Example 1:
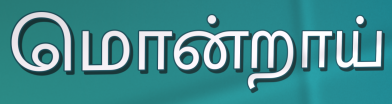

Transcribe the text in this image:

மொன்றாய்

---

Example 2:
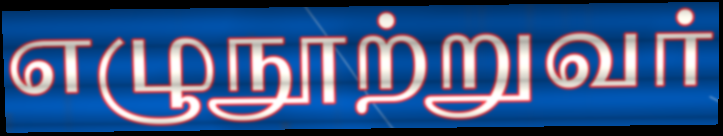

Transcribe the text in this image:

எழுநூற்றுவர்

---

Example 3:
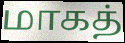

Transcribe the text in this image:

மாகத்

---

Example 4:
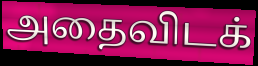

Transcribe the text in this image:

அதைவிடக்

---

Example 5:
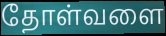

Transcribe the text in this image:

தோள்வளை